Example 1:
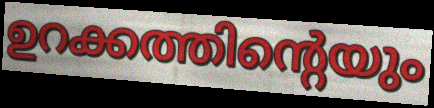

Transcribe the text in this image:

ഉറക്കത്തിന്റെയും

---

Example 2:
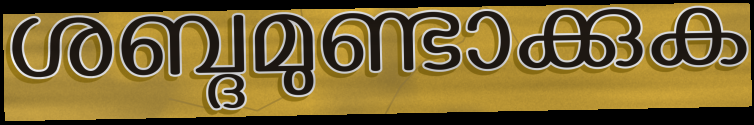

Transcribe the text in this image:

ശബ്ദമുണ്ടാക്കുക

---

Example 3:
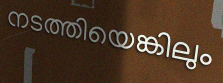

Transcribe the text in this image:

നടത്തിയെങ്കിലും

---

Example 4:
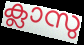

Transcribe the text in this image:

ക്ലാസു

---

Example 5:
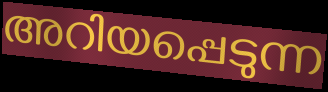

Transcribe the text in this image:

അറിയപ്പെടുന്ന